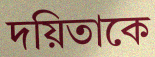
দয়িতাকে